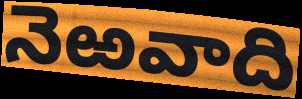
నెఱవాది